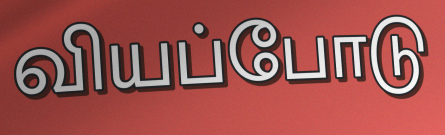
வியப்போடு